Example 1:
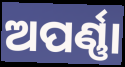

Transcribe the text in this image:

ଅପର୍ଣ୍ଣା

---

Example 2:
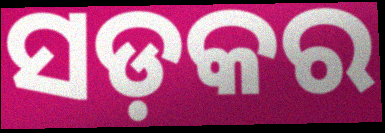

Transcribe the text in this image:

ସଡ଼କର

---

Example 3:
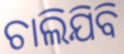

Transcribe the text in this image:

ଚାଲିଯିବି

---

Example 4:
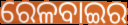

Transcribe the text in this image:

ରେଳବାଇର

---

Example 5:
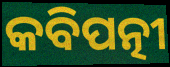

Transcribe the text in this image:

କବିପତ୍ନୀ